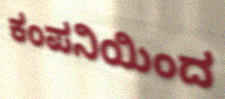
ಕಂಪನಿಯಿಂದ